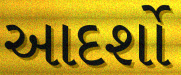
આદર્શો